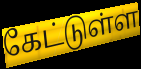
கேட்டுள்ள